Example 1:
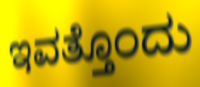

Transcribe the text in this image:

ಇವತ್ತೊಂದು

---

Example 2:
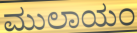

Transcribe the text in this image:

ಮುಲಾಯಂ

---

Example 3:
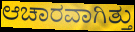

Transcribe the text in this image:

ಆಚಾರವಾಗಿತ್ತು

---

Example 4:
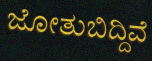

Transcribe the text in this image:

ಜೋತುಬಿದ್ದಿವೆ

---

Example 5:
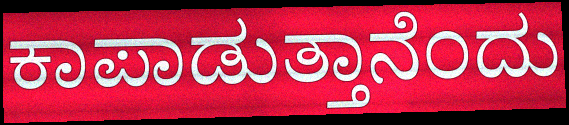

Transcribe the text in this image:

ಕಾಪಾಡುತ್ತಾನೆಂದು